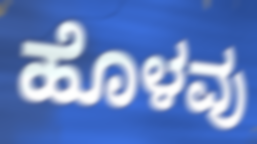
ಹೊಳವು